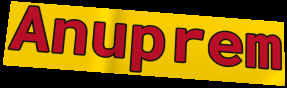
Anuprem